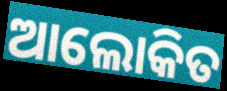
ଆଲୋକିତ